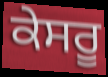
ਕੇਸਰੂ